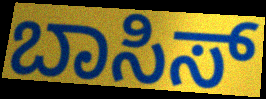
ಬಾಸಿಸ್